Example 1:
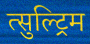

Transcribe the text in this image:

त्सुल्ट्रिम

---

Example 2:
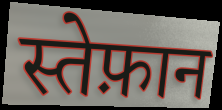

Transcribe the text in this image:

स्तेफ़ान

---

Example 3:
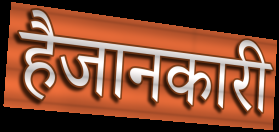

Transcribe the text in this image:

हैजानकारी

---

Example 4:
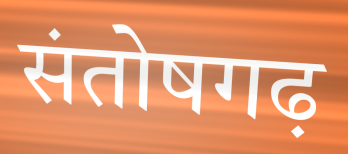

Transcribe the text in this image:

संतोषगढ़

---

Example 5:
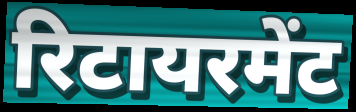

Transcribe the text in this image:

रिटायरमेंट